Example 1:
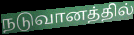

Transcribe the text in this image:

நடுவானத்தில்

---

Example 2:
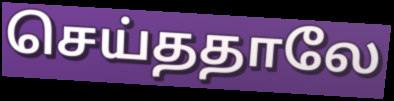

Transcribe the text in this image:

செய்ததாலே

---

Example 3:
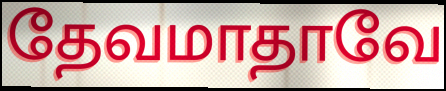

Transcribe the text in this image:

தேவமாதாவே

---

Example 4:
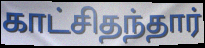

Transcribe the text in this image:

காட்சிதந்தார்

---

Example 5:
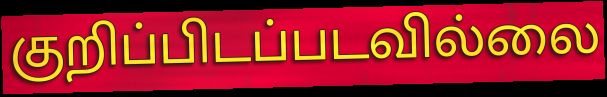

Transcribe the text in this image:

குறிப்பிடப்படவில்லை